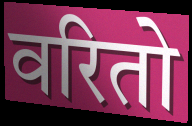
वरितो